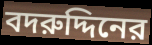
বদরুদ্দিনের